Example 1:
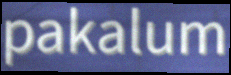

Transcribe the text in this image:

pakalum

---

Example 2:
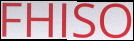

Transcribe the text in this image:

FHISO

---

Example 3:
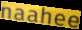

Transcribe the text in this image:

naahee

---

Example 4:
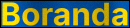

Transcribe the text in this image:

Boranda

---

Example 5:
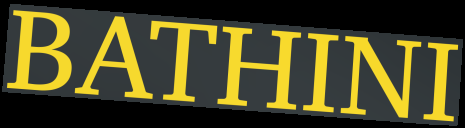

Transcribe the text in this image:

BATHINI